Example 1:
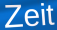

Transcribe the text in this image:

Zeit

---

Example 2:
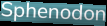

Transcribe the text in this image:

Sphenodon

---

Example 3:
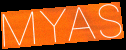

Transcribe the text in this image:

MYAS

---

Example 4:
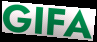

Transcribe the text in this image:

GIFA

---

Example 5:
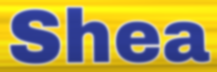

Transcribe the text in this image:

Shea